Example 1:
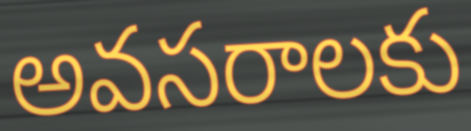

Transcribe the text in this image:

అవసరాలకు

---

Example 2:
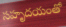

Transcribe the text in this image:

సహృదయంతో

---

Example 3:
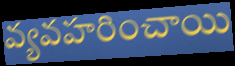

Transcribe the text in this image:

వ్యవహరించాయి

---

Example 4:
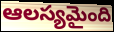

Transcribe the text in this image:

ఆలస్యమైంది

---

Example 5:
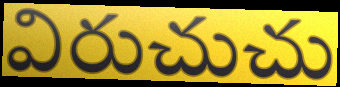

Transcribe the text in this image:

విరుచుచు